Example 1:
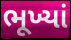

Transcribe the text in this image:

ભૂખ્યાં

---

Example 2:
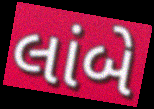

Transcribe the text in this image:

લાંબે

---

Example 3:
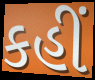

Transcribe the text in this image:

કહીં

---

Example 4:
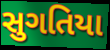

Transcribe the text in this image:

સુગતિયા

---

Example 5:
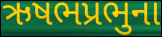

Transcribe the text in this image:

ઋષભપ્રભુના